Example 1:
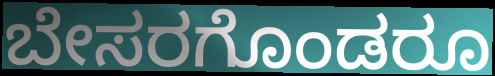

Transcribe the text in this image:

ಬೇಸರಗೊಂಡರೂ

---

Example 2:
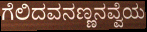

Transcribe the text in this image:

ಗೆಲಿದವನಣ್ಣನವ್ವೆಯ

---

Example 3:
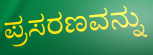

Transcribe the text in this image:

ಪ್ರಸರಣವನ್ನು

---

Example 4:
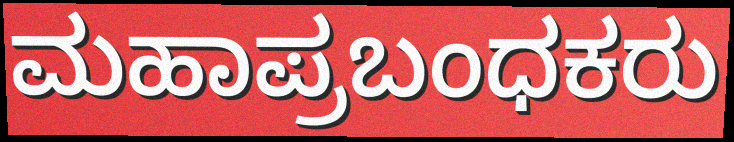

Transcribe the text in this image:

ಮಹಾಪ್ರಬಂಧಕರು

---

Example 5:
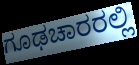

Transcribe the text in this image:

ಗೂಢಚಾರರಲ್ಲಿ